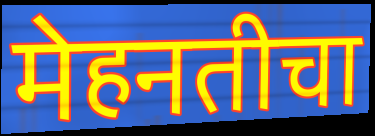
मेहनतीचा